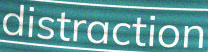
distraction